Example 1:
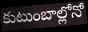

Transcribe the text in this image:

కుటుంబాల్లోనో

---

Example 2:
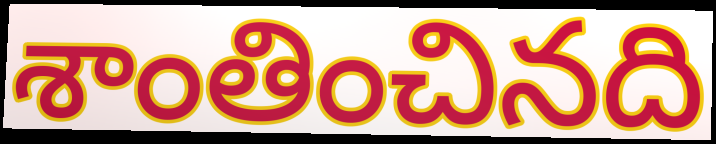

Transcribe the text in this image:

శాంతించినది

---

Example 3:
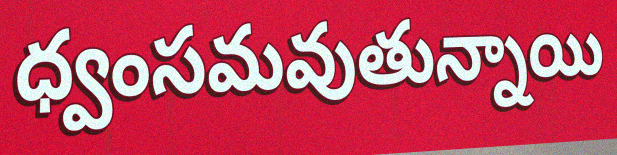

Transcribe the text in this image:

ధ్వంసమవుతున్నాయి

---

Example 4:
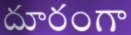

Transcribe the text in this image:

దూరంగా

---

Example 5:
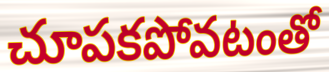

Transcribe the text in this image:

చూపకపోవటంతో